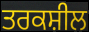
ਤਰਕਸ਼ੀਲ